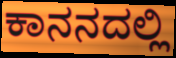
ಕಾನನದಲ್ಲಿ